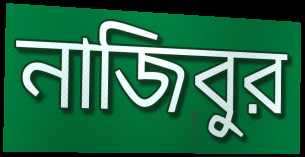
নাজিবুর